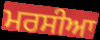
ਮਰਸੀਆ